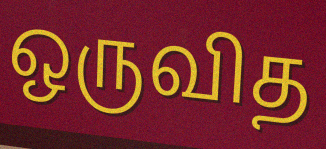
ஒருவித